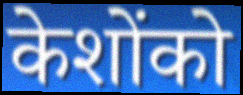
केशोंको